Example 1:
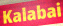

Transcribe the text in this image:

Kalabai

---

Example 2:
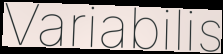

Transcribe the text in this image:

Variabilis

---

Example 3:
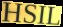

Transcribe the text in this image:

HSIL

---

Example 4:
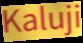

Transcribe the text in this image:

Kaluji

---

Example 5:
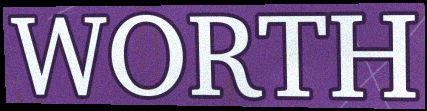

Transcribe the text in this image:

WORTH